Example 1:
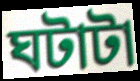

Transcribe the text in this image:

ঘটাটা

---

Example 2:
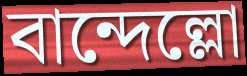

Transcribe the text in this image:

বান্দেল্লো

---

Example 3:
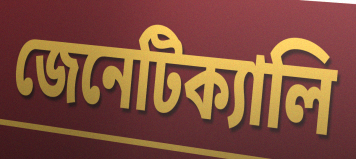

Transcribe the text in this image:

জেনেটিক্যালি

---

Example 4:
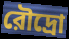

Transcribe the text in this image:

রৌদ্রো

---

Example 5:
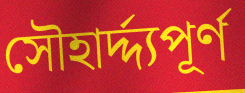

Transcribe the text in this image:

সৌহার্দ্দ্যপূর্ণ